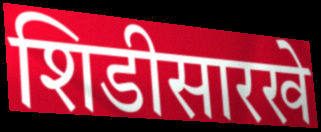
शिडीसारखे